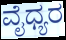
ವೈಧ್ಯರ